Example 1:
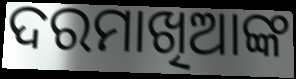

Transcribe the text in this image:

ଦରମାଖିଆଙ୍କ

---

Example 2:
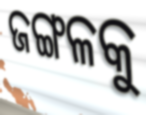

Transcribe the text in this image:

ଜଙ୍ଗଳକୁ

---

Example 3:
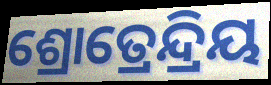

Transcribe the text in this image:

ଶ୍ରୋତ୍ରେନ୍ଦ୍ରିୟ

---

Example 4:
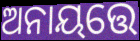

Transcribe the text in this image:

ଅନାୟତ୍ତେ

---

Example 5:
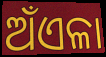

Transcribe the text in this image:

ଅଁଏଳା